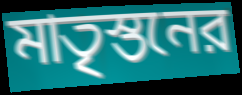
মাতৃস্তনের